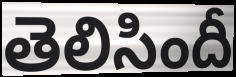
తెలిసిందీ